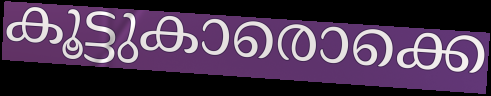
കൂട്ടുകാരൊക്കെ